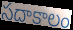
సదాకాలం